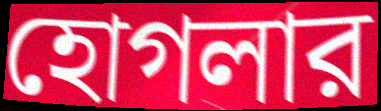
হোগলার